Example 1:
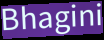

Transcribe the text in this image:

Bhagini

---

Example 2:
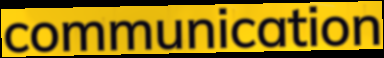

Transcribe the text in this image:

communication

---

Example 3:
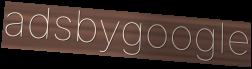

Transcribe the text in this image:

adsbygoogle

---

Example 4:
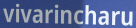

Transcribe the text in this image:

vivarincharu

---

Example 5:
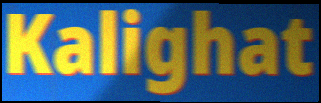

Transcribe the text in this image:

Kalighat